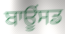
ਬਾਊਂਸਡ